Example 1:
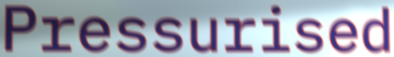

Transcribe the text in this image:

Pressurised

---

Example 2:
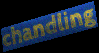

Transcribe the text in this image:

chandling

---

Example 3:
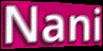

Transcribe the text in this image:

Nani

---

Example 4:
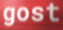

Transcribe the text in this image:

gost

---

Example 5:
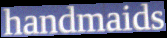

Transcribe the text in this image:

handmaids